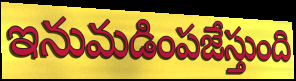
ఇనుమడింపజేస్తుంది